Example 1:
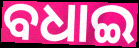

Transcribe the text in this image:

ବଧାଇ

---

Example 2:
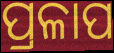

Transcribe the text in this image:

ପ୍ରଳାପ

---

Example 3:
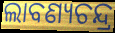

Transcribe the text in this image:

ଲାବଣ୍ୟଚନ୍ଦ୍ର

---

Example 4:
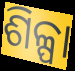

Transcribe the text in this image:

ଶିଳ୍ପା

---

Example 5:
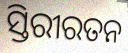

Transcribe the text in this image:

ସ୍ତିରୀରତନ